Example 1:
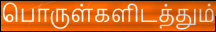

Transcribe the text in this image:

பொருள்களிடத்தும்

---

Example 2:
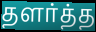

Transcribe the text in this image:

தளர்த்த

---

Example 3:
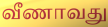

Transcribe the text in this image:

வீணாவது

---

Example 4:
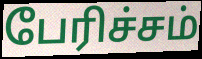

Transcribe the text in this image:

பேரிச்சம்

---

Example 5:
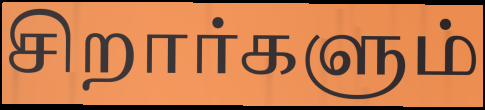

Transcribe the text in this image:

சிறார்களும்